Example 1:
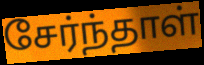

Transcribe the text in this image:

சேர்ந்தாள்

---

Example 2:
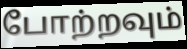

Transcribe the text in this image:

போற்றவும்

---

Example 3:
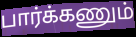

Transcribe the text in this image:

பார்க்கணும்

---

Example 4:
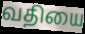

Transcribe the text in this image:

வதியை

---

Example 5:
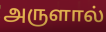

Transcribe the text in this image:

அருளால்